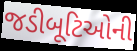
જડીબૂટિઓની